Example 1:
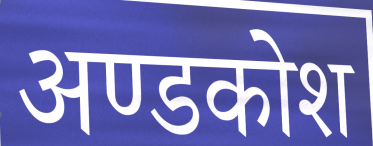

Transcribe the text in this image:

अण्डकोश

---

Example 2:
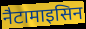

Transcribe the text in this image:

नैटामाइसिन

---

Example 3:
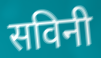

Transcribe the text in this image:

सविनी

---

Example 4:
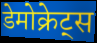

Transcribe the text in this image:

डेमोक्रेट्स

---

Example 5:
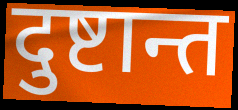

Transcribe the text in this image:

दुष्टान्त